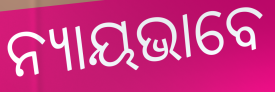
ନ୍ୟାୟଭାବେ